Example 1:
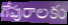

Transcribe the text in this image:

గోపురాలకు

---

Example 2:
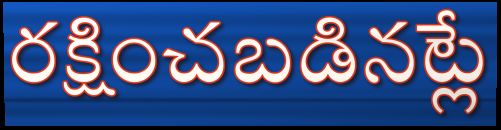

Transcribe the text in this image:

రక్షించబడినట్లే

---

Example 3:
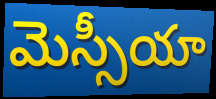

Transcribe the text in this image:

మెస్సీయా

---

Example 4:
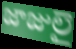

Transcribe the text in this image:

జాజులై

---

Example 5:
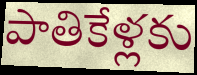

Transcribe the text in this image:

పాతికేళ్లకు